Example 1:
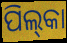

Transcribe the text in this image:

ପିଲ୍‌କା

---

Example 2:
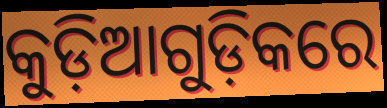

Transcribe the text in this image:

କୁଡ଼ିଆଗୁଡ଼ିକରେ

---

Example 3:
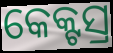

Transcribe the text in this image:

କେକ୍ଟସ୍ର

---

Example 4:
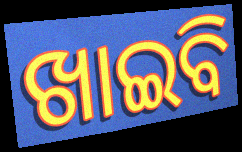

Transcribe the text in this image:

ଖାଇବି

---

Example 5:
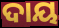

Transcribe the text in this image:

ଦାୟ